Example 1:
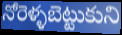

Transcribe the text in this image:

నోరెళ్ళబెట్టుకుని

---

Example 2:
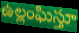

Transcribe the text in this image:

ఉల్లంఘిస్తూ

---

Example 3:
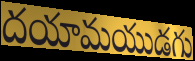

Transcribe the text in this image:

దయామయుడగు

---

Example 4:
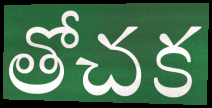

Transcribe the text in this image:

తోచక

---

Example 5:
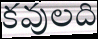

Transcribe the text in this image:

కవులది